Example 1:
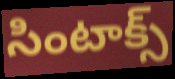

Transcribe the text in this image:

సింటాక్స్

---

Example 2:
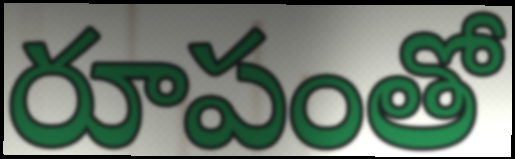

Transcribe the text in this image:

రూపంతో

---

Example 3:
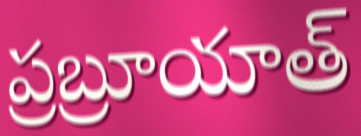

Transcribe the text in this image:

ప్రబ్రూయాత్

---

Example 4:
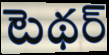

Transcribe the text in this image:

టెథర్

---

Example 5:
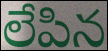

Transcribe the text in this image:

లేపిన